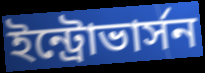
ইন্ট্রোভার্সন